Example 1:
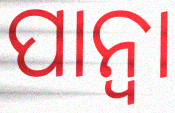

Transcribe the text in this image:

ପାନ୍ଵା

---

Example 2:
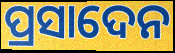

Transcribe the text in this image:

ପ୍ରସାଦେନ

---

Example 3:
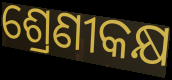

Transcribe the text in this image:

ଶ୍ରେଣୀକକ୍ଷ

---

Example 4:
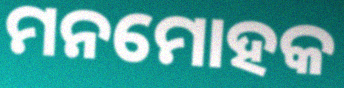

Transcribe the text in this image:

ମନମୋହକ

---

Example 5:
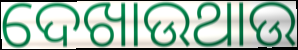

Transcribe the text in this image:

ଦେଖାଉଥାଉ